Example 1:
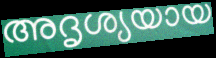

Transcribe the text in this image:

അദൃശ്യയായ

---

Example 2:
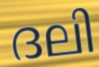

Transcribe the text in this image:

ദലി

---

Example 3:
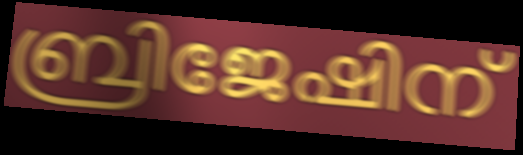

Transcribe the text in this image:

ബ്രിജേഷിന്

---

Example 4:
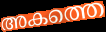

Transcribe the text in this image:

അകത്തെ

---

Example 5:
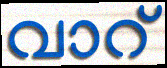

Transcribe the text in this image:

വാറ്